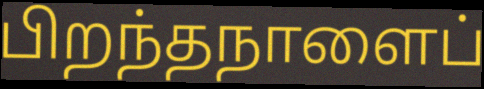
பிறந்தநாளைப்